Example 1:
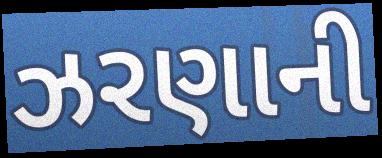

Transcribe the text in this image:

ઝરણાની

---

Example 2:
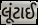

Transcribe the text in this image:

લૂંટાઈ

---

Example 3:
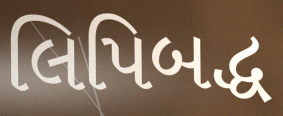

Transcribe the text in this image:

લિપિબદ્ધ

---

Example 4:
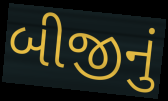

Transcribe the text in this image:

બીજીનું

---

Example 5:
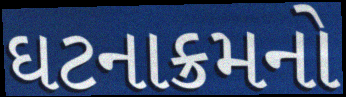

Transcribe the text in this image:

ઘટનાક્રમનો